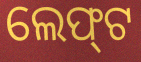
ଲେଫ୍‌ଟ